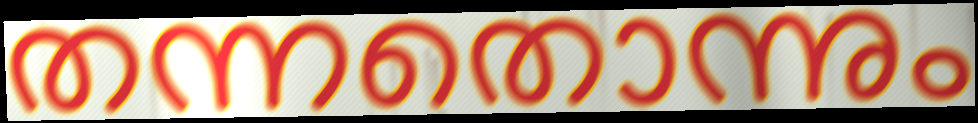
തന്നതൊന്നും